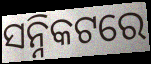
ସନ୍ନିକଟରେ